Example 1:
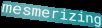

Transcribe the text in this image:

mesmerizing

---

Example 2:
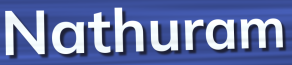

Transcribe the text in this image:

Nathuram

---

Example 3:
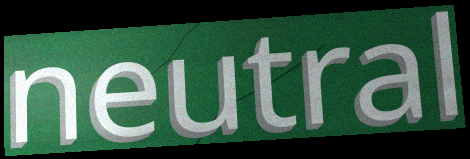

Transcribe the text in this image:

neutral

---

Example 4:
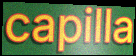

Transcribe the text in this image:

capilla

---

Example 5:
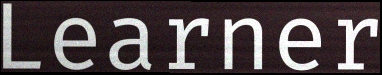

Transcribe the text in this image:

Learner